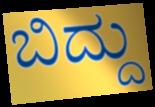
ಬಿದ್ದು